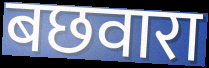
बछवारा